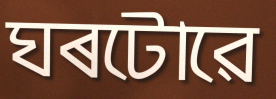
ঘৰটোৱে